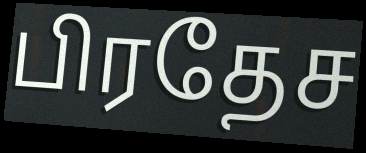
பிரதேச